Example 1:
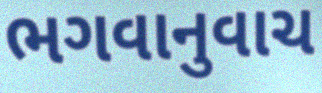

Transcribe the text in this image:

ભગવાનુવાચ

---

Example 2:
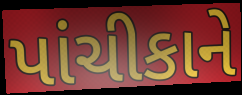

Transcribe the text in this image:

પાંચીકાને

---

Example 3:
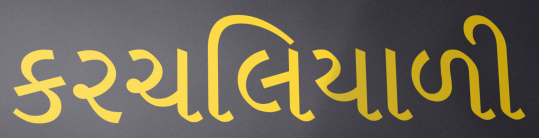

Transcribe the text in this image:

કરચલિયાળી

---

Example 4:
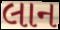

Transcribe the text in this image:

લાન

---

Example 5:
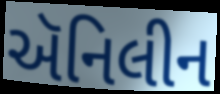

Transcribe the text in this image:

ઍનિલીન